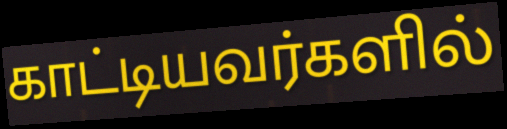
காட்டியவர்களில்